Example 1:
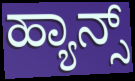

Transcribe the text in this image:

ಹ್ಯಾನ್ಸ್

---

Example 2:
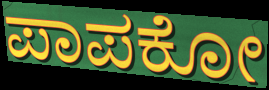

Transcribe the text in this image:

ಪಾಪಕೋ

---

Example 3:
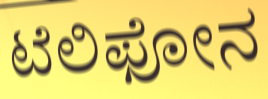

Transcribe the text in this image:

ಟೆಲಿಫೋನ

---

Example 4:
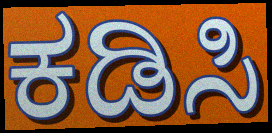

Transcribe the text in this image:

ಕಡಿಸಿ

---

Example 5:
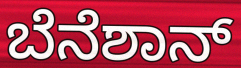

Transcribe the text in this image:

ಬೆನೆಶಾನ್